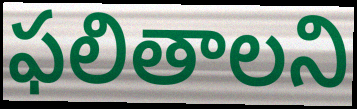
ఫలితాలని